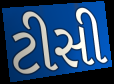
ટીસી